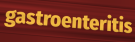
gastroenteritis